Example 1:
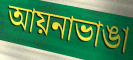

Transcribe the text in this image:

আয়নাভাঙা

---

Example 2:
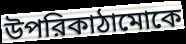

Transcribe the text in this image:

উপরিকাঠামোকে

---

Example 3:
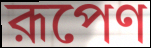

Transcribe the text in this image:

রূপেণ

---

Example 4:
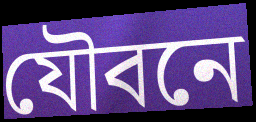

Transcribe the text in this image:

যৌবনে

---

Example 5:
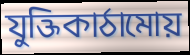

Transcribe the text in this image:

যুক্তিকাঠামোয়